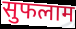
सुफलाम